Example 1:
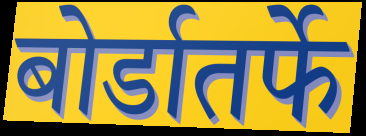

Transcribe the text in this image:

बोर्डातर्फे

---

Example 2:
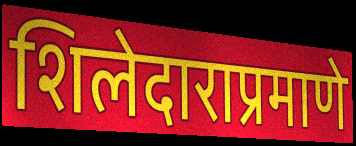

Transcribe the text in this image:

शिलेदाराप्रमाणे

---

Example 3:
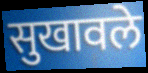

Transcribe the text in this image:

सुखावले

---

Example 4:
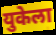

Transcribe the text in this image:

युकेला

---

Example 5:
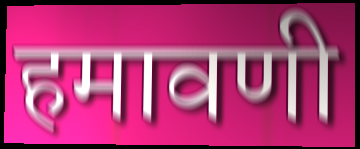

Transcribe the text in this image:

हमावणी